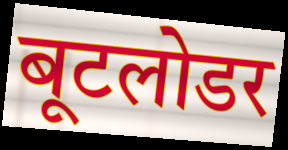
बूटलोडर